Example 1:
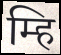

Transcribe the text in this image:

म्हि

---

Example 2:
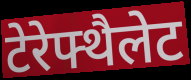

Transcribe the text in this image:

टेरेफ्थैलेट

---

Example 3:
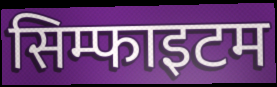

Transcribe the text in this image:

सिम्फाइटम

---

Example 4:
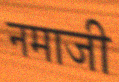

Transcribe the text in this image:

नमाजी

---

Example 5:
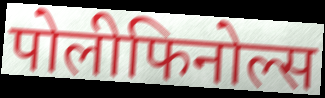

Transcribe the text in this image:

पोलीफिनोल्स